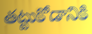
తట్టుకోడానికి